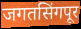
जगतसिंगपूर